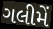
ગલીમેં